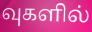
வுகளில்